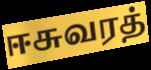
ஈசுவரத்